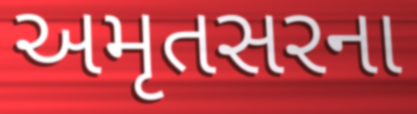
અમૃતસરના